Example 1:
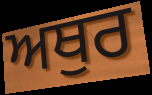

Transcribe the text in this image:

ਅਥੁਰ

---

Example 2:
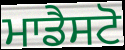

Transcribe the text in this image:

ਮਾਡੈਸਟੋ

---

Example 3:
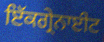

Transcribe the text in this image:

ਇੱਕਗ੍ਰੇਨਾਈਟ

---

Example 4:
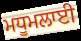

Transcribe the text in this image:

ਮਧੂਮਲਾਈ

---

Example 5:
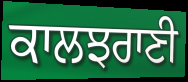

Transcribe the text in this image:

ਕਾਲਝਰਾਣੀ